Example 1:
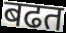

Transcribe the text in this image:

बढत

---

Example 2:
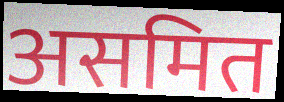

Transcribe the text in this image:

असमित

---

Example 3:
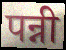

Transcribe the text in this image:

पन्नी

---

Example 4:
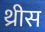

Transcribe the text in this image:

थ्रीस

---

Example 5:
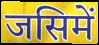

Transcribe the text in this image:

जसिमें